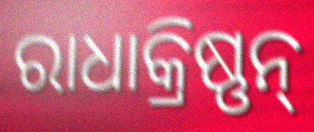
ରାଧାକ୍ରିଷ୍ଣନ୍